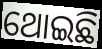
ଥୋଇଛି